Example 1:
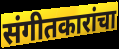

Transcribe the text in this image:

संगीतकारांचा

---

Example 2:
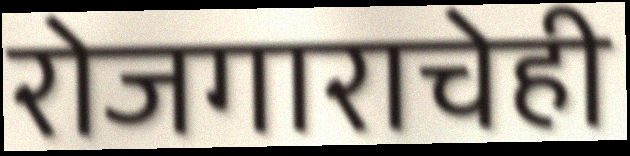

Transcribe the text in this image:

रोजगाराचेही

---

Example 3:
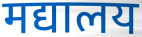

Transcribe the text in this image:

मद्यालय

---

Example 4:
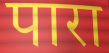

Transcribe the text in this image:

पारा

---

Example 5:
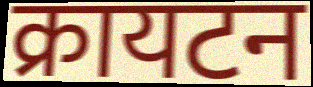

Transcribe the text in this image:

क्रायटन